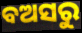
ବଅସରୁ